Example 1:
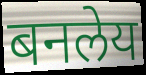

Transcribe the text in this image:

बनलेय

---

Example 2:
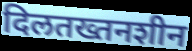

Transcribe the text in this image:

दिलतख्तनशीन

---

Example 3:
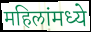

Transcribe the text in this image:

महिलांमध्ये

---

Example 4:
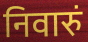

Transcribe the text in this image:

निवारुं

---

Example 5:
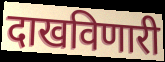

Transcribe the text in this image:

दाखविणारी